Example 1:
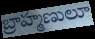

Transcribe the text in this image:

బ్రాహ్మణులూ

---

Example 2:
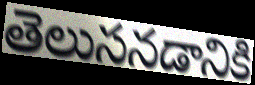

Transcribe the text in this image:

తెలుసనడానికి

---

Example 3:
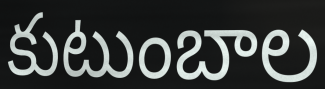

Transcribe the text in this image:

కుటుంబాల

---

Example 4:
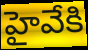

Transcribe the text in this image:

హైవేకి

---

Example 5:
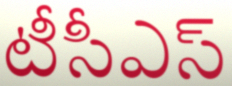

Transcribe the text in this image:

టీసీఎస్